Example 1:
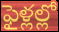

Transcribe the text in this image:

ఫైళ్లల్లో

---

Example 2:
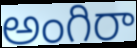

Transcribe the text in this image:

అంగిరా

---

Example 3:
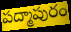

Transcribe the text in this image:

పద్మాపురం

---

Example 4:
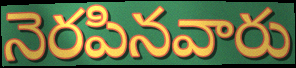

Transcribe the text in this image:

నెరపినవారు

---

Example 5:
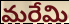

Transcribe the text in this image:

మరేమి